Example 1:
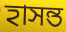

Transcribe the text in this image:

হাসন্ত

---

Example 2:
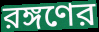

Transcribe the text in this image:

রঙ্গণের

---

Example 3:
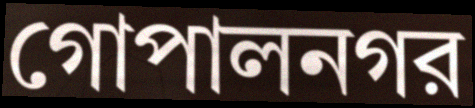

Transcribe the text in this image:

গোপালনগর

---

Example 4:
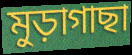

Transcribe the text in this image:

মুড়াগাছা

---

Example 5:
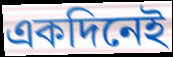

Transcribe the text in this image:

একদিনেই